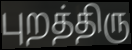
புறத்திரு